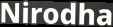
Nirodha